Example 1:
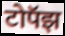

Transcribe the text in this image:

टोपॅझ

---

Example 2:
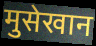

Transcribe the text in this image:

मुसेखान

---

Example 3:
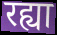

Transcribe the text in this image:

रह्या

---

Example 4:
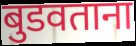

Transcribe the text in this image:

बुडवताना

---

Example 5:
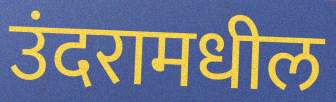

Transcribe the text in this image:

उंदरामधील